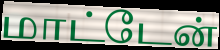
மாட்டேன்